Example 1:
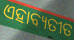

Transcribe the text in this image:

ଏହାବ୍ୟତୀତ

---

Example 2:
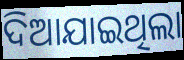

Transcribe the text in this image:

ଦିଆଯାଇଥିଲା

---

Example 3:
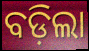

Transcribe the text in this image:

ବଡ଼ିଲା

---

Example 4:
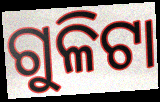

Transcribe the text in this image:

ଗୁଳିଟା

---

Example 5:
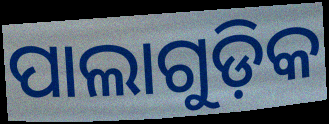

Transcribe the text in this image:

ପାଲାଗୁଡ଼ିକ